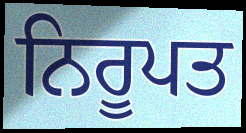
ਨਿਰੂਪਤ